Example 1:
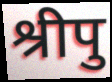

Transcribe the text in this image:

श्रीपु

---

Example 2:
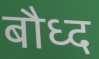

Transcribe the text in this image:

बौध्द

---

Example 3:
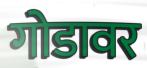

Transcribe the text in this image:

गोडावर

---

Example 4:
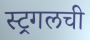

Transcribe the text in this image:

स्ट्रगलची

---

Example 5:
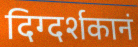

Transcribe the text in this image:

दिग्दर्शकानं